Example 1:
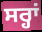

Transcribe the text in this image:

ਸਰ੍ਹਾਂ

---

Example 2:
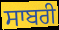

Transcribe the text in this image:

ਸਾਬਰੀ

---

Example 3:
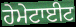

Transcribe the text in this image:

ਹੇਮੇਟਾਈਟ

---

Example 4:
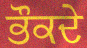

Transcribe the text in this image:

ਭੌਕਦੇ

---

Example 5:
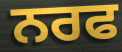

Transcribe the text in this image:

ਨਰਫ